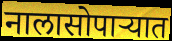
नालासोपाऱ्यात